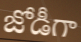
జోడీగా